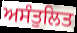
ਅਸੰਤੁਲਿਤ